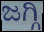
ಜಗ್ಗಿ